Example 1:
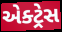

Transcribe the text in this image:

એક્ટ્રેસ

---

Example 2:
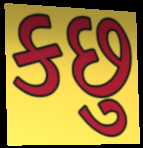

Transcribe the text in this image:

કછુ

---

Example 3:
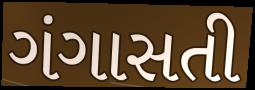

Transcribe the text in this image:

ગંગાસતી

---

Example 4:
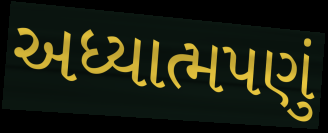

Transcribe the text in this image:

અધ્યાત્મપણું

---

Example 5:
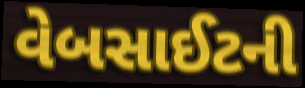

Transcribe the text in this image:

વેબસાઈટની